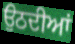
ਉਠਦੀਆਂ